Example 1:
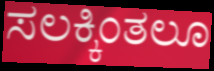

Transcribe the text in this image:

ಸಲಕ್ಕಿಂತಲೂ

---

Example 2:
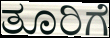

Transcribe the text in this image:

ತೂರಿಗೆ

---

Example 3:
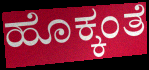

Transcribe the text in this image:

ಹೊಕ್ಕಂತೆ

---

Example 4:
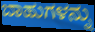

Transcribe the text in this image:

ಬಾಹುಗಳನ್ನು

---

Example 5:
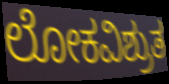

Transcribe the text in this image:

ಲೋಕವಿಶ್ರುತ